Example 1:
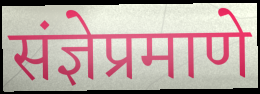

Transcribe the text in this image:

संज्ञेप्रमाणे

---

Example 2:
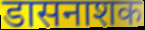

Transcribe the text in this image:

डासनाशक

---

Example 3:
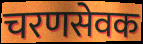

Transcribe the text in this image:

चरणसेवक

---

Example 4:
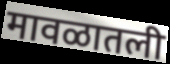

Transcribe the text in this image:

मावळातली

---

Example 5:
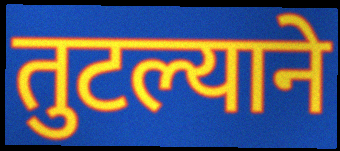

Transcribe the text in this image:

तुटल्याने